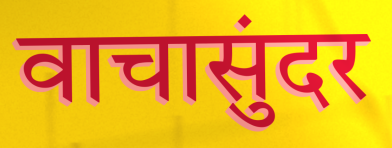
वाचासुंदर